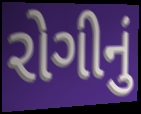
રોગીનું